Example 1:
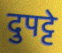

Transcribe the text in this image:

दुपट्टे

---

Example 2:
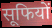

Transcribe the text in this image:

सूफियों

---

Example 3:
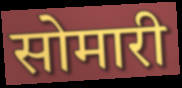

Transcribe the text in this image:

सोमारी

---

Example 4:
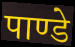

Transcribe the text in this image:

पाण्डे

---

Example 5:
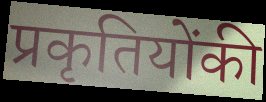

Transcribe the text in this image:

प्रकृतियोंकी